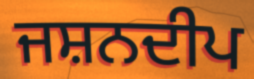
ਜਸ਼ਨਦੀਪ